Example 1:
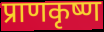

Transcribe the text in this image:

प्राणकृष्ण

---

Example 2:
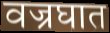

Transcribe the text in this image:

वज्रघात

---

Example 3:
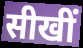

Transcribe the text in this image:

सीखीं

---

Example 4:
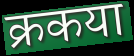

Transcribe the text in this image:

क्रकया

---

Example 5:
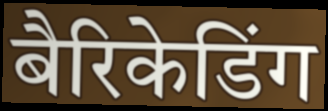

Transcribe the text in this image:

बैरिकेडिंग